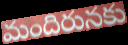
మందిరునకు